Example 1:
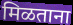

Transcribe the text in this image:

मिळताना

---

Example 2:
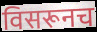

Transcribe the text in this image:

विसरूनच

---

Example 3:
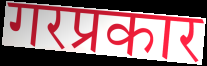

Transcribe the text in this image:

गरप्रकार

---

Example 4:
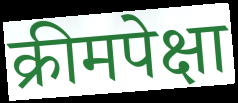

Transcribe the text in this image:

क्रीमपेक्षा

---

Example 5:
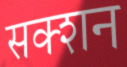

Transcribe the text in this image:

सक्शन